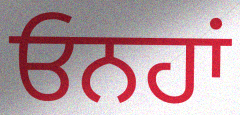
ਓਨਹਾਂ